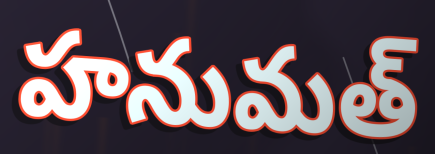
హనుమత్